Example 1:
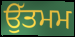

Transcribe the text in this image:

ਉੱਤਮਮ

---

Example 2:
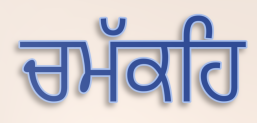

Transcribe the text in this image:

ਚਮੱਕਹਿ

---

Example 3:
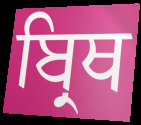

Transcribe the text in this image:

ਬ੍ਰਿਥ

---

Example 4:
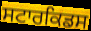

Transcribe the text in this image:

ਸਟਾਰਕਿਡਸ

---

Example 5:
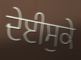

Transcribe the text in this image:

ਦੇਈਸੁਕੇ